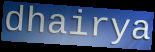
dhairya